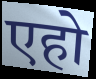
एहो